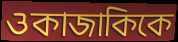
ওকাজাকিকে